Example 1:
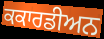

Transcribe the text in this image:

ਕਕਾਰਡੀਅਨ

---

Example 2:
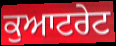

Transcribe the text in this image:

ਕੁਆਟਰੇਟ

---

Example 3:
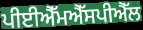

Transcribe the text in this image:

ਪੀਈਐੱਮਐੱਸਪੀਐੱਲ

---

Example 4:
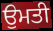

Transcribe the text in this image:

ਉਮਤੀ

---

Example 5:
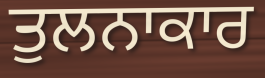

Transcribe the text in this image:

ਤੁਲਨਾਕਾਰ